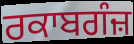
ਰਕਾਬਗੰਜ਼